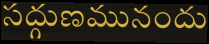
సద్గుణమునందు